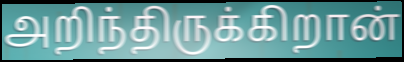
அறிந்திருக்கிறான்